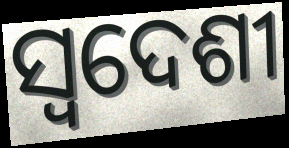
ସ୍ୱଦେଶୀ